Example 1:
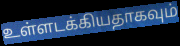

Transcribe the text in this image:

உள்ளடக்கியதாகவும்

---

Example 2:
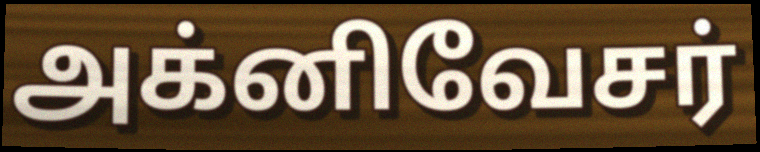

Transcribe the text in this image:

அக்னிவேசர்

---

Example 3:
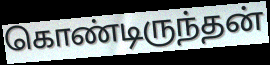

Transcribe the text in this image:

கொண்டிருந்தன்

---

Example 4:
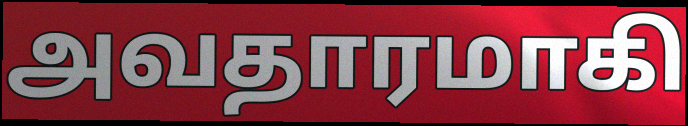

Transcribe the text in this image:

அவதாரமாகி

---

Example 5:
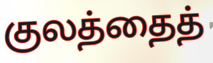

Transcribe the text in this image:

குலத்தைத்